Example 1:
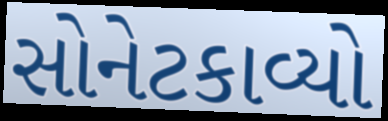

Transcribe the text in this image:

સોનેટકાવ્યો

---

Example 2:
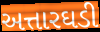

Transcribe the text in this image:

અત્તારઘડી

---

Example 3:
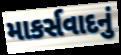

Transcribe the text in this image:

માકર્સવાદનું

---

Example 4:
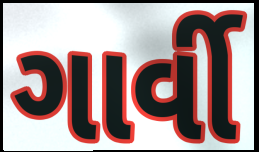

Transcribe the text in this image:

ગાર્વી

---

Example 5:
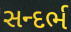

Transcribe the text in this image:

સન્દર્ભ